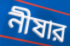
নীষার